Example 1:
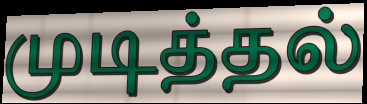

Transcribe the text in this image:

முடித்தல்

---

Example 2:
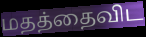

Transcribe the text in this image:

மதத்தைவிட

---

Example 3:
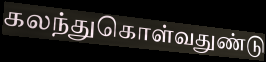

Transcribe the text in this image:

கலந்துகொள்வதுண்டு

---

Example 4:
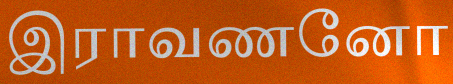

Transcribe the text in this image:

இராவணனோ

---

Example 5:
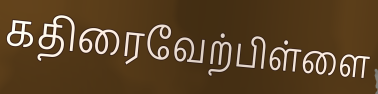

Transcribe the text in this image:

கதிரைவேற்பிள்ளை